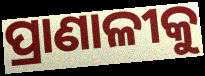
ପ୍ରାଣାଳୀକୁ